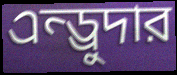
এন্ড্রুদার